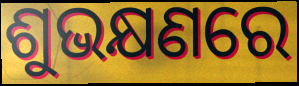
ଶୁଭକ୍ଷଣରେ